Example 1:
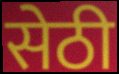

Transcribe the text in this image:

सेठी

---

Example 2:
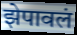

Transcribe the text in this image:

झेपावलं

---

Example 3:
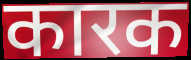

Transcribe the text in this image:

कारक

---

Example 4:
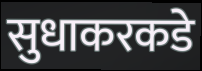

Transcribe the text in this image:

सुधाकरकडे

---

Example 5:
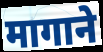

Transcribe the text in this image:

मागाने